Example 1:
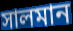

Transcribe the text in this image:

সালমান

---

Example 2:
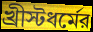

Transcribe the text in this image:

খ্রীস্টধর্মের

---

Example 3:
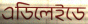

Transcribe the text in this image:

এডিলেইডে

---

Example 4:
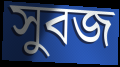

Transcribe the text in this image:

সুবজ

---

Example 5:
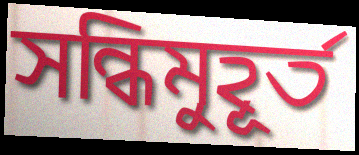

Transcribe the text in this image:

সন্ধিমুহূর্ত